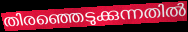
തിരഞ്ഞെടുക്കുന്നതിൽ